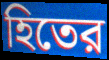
হিতের